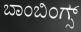
ಬಾಂಬಿಂಗ್ಸ್